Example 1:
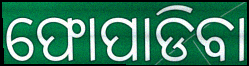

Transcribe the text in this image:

ଫୋପାଡିବା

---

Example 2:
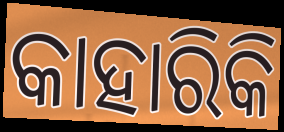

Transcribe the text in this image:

କାହାରିକି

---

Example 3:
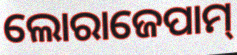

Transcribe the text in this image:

ଲୋରାଜେପାମ୍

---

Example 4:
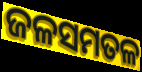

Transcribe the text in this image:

ଜଳସମତଳ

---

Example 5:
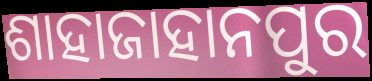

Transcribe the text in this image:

ଶାହାଜାହାନପୁର